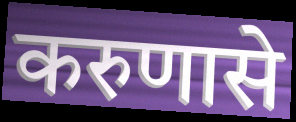
करुणासे